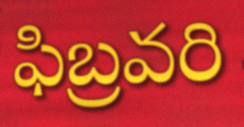
ఫిబ్రవరి